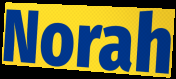
Norah